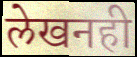
लेखनही